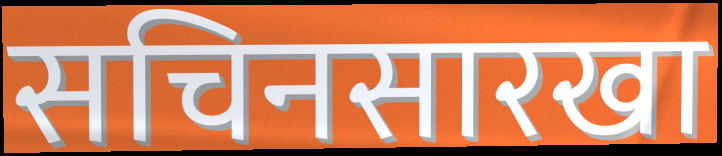
सचिनसारखा